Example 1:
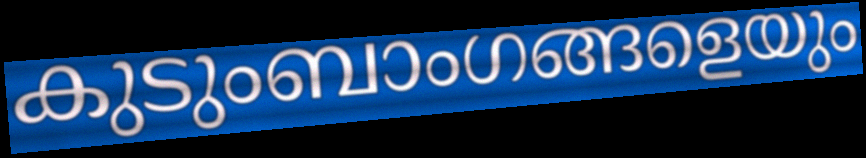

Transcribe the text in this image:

കുടുംബാംഗങ്ങളെയും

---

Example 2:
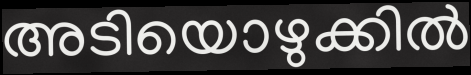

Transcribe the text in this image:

അടിയൊഴുക്കിൽ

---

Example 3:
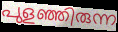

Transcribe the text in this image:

പുളഞ്ഞിരുന്ന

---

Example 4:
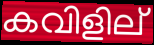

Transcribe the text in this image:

കവിളില്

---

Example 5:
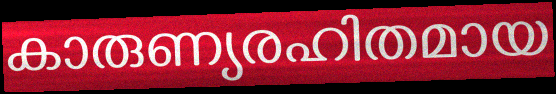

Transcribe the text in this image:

കാരുണ്യരഹിതമായ